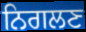
ਨਿਗਲਣ